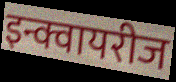
इन्क्वायरीज